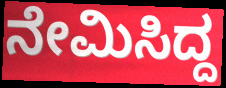
ನೇಮಿಸಿದ್ದ